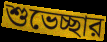
শুভেচ্ছার